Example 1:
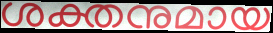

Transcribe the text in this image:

ശക്തനുമായ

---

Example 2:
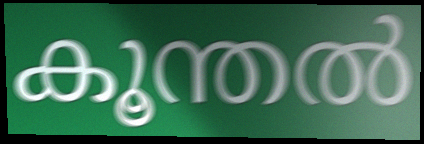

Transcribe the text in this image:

കൂന്തൽ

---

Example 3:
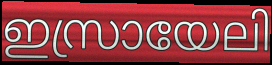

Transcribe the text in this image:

ഇസ്രായേലി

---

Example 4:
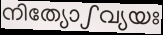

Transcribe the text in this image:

നിത്യോഽവ്യയഃ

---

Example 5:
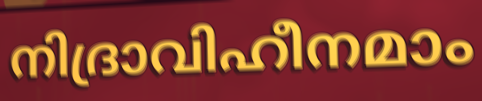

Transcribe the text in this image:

നിദ്രാവിഹീനമാം